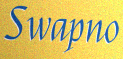
Swapno